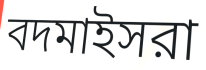
বদমাইসরা